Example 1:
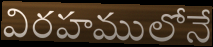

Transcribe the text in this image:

విరహములోనే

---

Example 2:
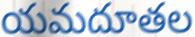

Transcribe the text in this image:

యమదూతల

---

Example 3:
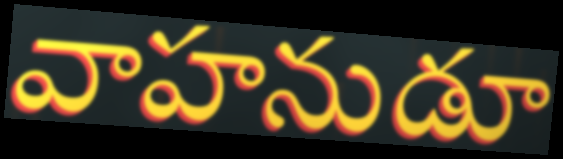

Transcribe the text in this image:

వాహనుడూ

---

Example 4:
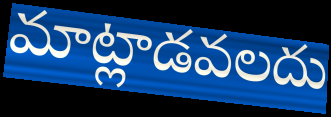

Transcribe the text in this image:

మాట్లాడవలదు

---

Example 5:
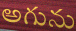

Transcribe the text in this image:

అగును